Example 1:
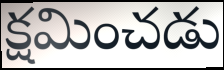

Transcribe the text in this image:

క్షమించడు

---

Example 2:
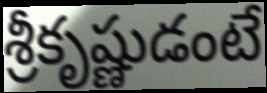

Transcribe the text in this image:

శ్రీకృష్ణుడంటే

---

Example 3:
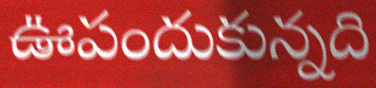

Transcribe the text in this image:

ఊపందుకున్నది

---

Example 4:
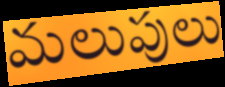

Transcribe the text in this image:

మలుపులు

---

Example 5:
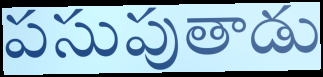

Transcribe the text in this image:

పసుపుతాడు